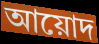
আয়োদ